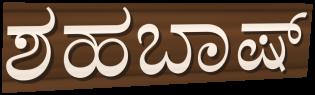
ಶಹಬಾಷ್